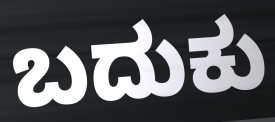
ಬದುಕು